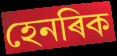
হেনৰিক